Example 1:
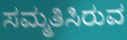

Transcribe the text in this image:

ಸಮ್ಮತಿಸಿರುವ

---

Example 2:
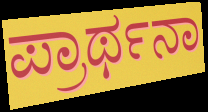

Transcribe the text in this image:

ಪ್ರಾರ್ಥನಾ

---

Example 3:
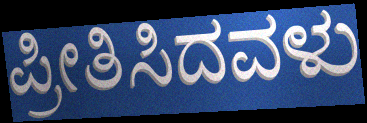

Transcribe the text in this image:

ಪ್ರೀತಿಸಿದವಳು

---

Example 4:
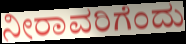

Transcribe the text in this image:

ನೀರಾವರಿಗೆಂದು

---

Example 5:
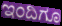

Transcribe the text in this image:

ಇಂದಿಗೂ